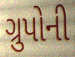
ગ્રુપોની